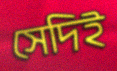
সেদিই